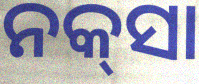
ନକ୍‍ସା